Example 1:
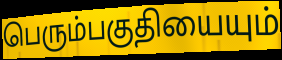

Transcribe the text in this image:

பெரும்பகுதியையும்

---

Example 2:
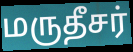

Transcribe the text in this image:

மருதீசர்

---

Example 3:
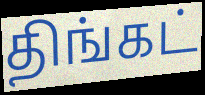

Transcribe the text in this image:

திங்கட்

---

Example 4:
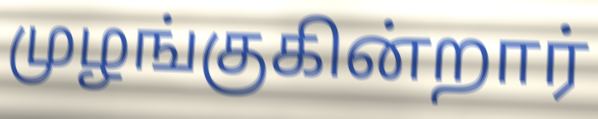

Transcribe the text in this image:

முழங்குகின்றார்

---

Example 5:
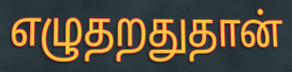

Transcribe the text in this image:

எழுதறதுதான்